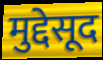
मुद्देसूद